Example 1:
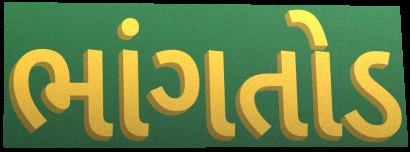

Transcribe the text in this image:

ભાંગતોડ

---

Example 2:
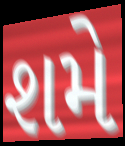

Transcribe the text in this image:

શમે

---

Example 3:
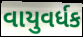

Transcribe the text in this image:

વાયુવર્ધક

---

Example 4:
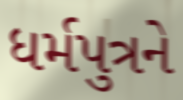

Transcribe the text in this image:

ધર્મપુત્રને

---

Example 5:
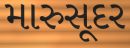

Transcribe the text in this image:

મારુસૂદર